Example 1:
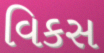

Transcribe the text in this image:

વિકસ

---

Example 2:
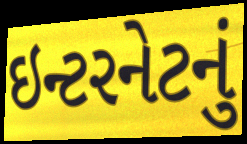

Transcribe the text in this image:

ઇન્ટરનેટનું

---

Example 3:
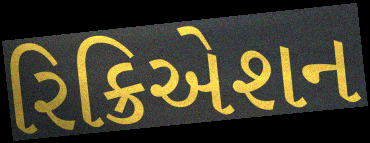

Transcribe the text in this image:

રિક્રિએશન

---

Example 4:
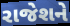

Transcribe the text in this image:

રાજેશને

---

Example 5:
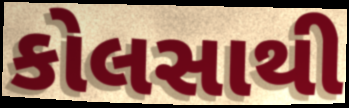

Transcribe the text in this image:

કોલસાથી